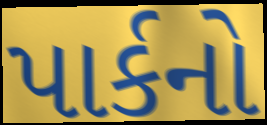
પાર્કનો